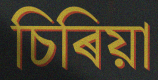
চিৰিয়া